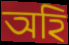
অহি